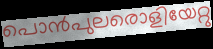
പൊൻപുലരൊളിയേറ്റു